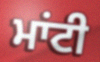
ਮਾਂਟੀ